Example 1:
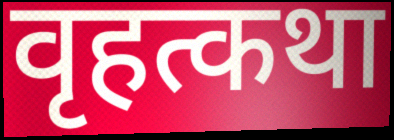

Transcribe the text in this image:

वृहत्कथा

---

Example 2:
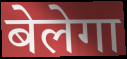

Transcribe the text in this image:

बेलेगा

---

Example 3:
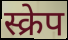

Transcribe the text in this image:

स्क्रेप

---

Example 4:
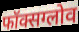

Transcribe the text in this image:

फॉक्सग्लोव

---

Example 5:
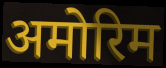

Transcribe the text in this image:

अमोरिम